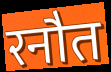
रनौत